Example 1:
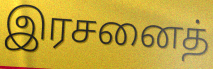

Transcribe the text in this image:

இரசனைத்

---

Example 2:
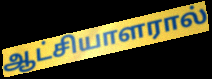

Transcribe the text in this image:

ஆட்சியாளரால்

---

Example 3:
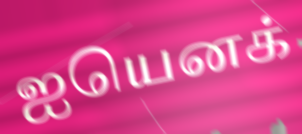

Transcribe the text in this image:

ஐயெனக்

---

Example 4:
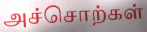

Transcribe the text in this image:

அச்சொற்கள்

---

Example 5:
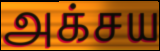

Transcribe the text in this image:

அக்சய